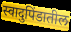
स्वादुपिंडातील